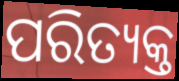
ପରିତ୍ୟକ୍ତ